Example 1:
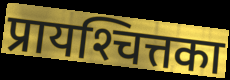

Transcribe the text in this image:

प्रायश्चित्तका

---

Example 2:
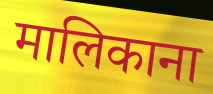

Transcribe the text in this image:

मालिकाना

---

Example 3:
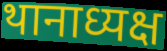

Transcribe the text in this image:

थानाध्यक्ष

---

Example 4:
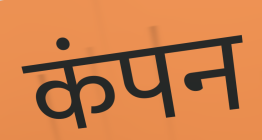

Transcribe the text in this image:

कंपन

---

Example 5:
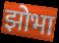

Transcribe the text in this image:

झोभा